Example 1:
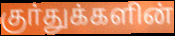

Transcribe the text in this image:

குர்துக்களின்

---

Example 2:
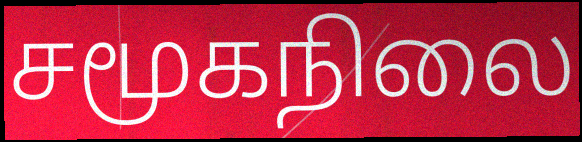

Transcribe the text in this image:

சமூகநிலை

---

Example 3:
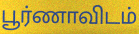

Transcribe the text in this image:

பூர்ணாவிடம்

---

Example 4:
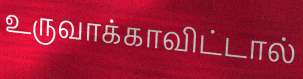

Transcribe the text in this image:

உருவாக்காவிட்டால்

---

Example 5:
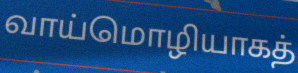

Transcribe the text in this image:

வாய்மொழியாகத்